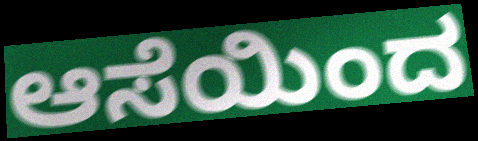
ಆಸೆಯಿಂದ